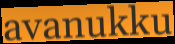
avanukku